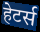
हेटर्स